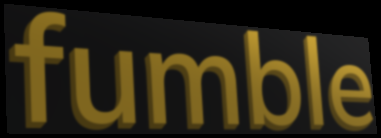
fumble